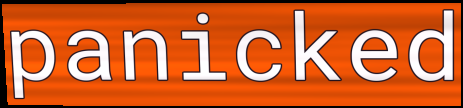
panicked